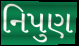
નિપુણ